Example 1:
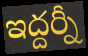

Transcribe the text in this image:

ఇద్దర్నీ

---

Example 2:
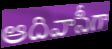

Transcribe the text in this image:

ఆదివాసీగా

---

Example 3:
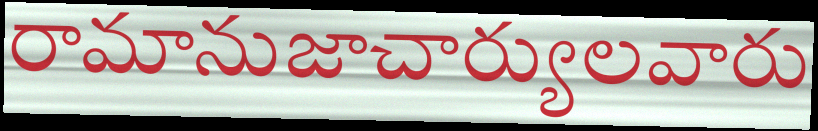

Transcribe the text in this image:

రామానుజాచార్యులవారు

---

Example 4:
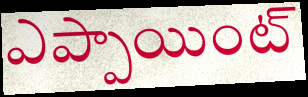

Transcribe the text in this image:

ఎప్పాయింట్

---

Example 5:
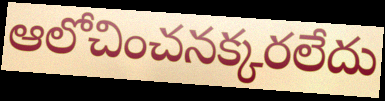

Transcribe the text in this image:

ఆలోచించనక్కరలేదు